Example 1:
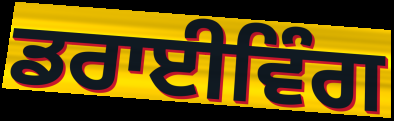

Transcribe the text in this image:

ਡਰਾਈਵਿੰਗ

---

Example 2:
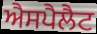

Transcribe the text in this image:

ਐਸਪੈਲੈਟ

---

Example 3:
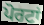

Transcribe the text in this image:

ਪੋਰਟਾਂ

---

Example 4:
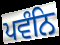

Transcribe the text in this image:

ਪਵੰਨਿ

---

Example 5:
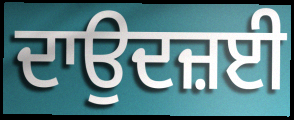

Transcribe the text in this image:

ਦਾਉਦਜ਼ਈ